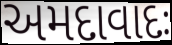
અમદાવાદઃ